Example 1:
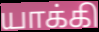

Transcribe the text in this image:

யாக்கி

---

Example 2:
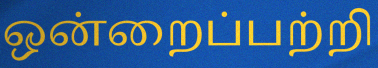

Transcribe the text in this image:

ஒன்றைப்பற்றி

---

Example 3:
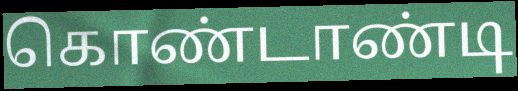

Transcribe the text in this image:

கொண்டாண்டி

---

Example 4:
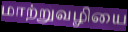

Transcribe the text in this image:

மாற்றுவழியை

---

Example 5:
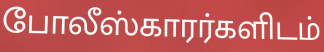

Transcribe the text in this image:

போலீஸ்காரர்களிடம்